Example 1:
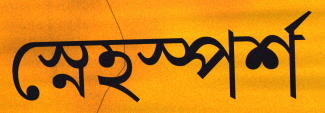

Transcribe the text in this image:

স্নেহস্পর্শ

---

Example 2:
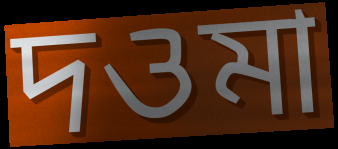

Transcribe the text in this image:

দওমা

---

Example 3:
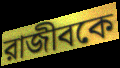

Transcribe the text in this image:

রাজীবকে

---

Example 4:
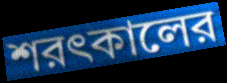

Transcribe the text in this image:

শরৎকালের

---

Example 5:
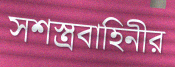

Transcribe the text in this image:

সশস্ত্রবাহিনীর